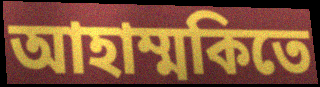
আহাম্মকিতে